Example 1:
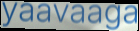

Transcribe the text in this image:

yaavaaga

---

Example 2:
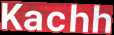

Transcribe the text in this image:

Kachh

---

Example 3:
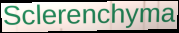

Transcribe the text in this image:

Sclerenchyma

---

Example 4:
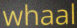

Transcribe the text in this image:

whaal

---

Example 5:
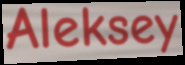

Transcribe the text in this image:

Aleksey